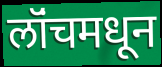
लॉंचमधून